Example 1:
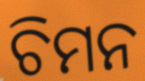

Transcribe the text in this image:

ଚିମନ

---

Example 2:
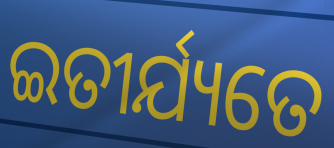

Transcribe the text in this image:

ଇତୀର୍ଯ୍ୟତେ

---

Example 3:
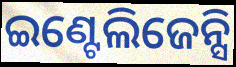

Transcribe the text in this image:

ଇଣ୍ଟେଲିଜେନ୍ସି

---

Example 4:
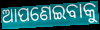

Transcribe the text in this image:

ଆପଣେଇବାକୁ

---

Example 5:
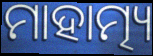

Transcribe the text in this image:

ମାହାତ୍ମ୍ୟ